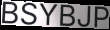
BSYBJP